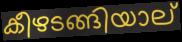
കീഴടങ്ങിയാല്